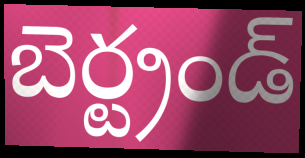
బెర్ట్రండ్